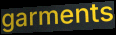
garments